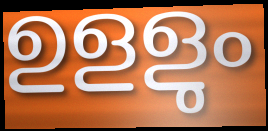
ഉളളും